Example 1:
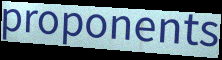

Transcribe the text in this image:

proponents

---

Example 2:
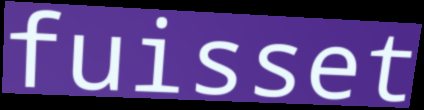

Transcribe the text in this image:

fuisset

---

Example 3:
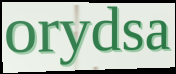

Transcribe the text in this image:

orydsa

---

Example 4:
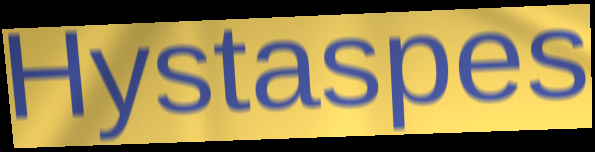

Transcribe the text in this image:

Hystaspes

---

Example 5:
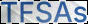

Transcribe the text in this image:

TFSAs